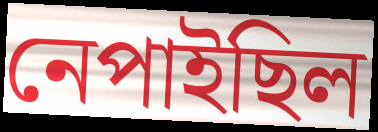
নেপাইছিল